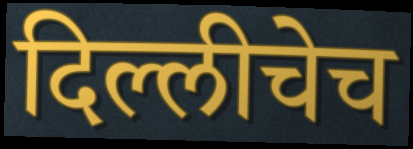
दिल्लीचेच